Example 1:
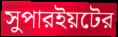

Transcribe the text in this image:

সুপারইয়টের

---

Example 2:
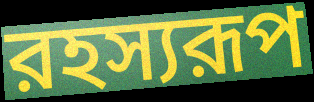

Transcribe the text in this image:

রহস্যরূপ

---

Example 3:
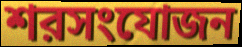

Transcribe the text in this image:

শরসংযোজন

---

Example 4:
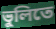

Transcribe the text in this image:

ভুলিতে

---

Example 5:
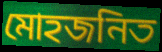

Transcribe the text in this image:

মোহজনিত